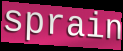
sprain